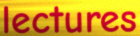
lectures